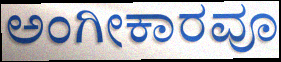
ಅಂಗೀಕಾರವೂ